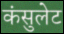
कंसुलेट